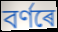
বৰ্ণৰে